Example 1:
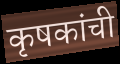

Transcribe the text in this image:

कृषकांची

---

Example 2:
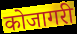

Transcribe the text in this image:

कोजागरी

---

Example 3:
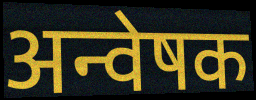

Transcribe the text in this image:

अन्वेषक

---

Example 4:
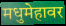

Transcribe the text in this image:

मधुमेहावर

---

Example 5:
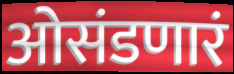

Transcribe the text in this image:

ओसंडणारं